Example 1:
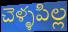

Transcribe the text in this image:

చెళ్ళపిల్ల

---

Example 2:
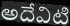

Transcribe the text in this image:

అదేవిటి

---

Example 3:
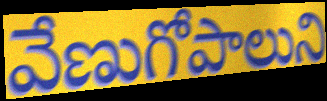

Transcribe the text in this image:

వేణుగోపాలుని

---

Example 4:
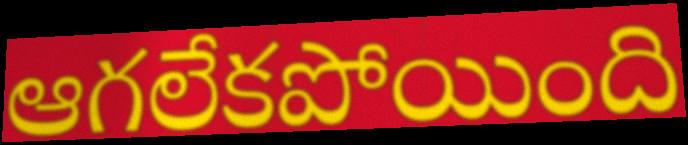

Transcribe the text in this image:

ఆగలేకపోయింది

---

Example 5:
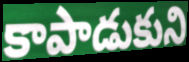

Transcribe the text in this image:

కాపాడుకుని